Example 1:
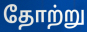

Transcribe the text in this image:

தோற்று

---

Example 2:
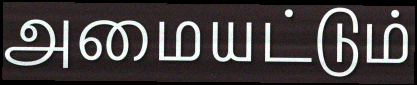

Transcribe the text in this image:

அமையட்டும்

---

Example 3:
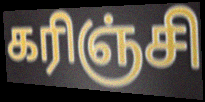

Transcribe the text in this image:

கரிஞ்சி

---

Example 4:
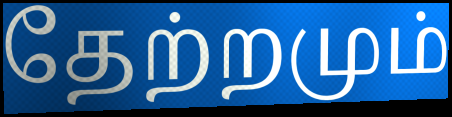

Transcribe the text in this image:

தேற்றமும்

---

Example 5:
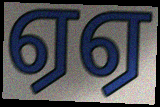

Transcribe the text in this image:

ஏஏ